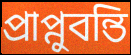
প্রাপ্নুবন্তি